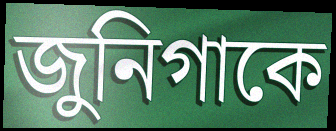
জুনিগাকে